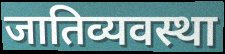
जातिव्यवस्था